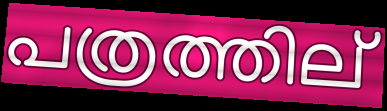
പത്രത്തില്